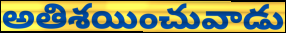
అతిశయించువాడు